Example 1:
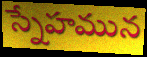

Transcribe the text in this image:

స్నేహమున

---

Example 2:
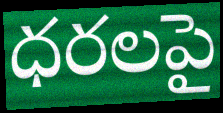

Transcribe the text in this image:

ధరలపై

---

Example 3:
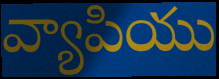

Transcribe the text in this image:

వ్యాపియు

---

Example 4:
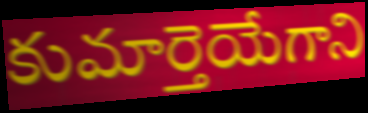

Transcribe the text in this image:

కుమార్తెయేగాని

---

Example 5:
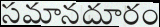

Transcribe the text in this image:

సమానదూరం